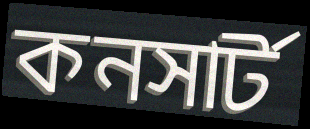
কনসার্ট